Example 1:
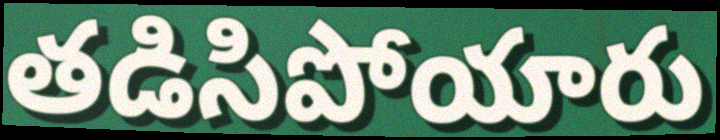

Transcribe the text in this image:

తడిసిపోయారు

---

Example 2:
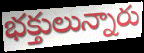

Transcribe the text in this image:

భక్తులున్నారు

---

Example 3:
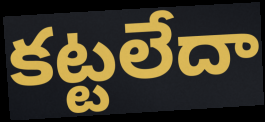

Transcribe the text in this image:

కట్టలేదా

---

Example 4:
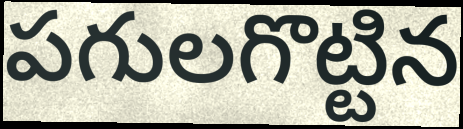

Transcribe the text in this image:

పగులగొట్టిన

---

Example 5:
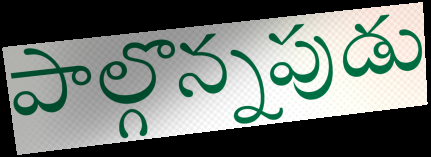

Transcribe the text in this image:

పాల్గొన్నపుడు